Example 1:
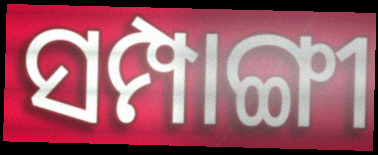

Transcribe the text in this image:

ସମ୍ପାଙ୍ଗୀ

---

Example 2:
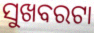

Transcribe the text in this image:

ସୁଖବରଟା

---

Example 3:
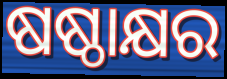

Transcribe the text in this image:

ଷଷ୍ଠାକ୍ଷର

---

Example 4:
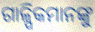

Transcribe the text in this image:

ଗାଳ୍ପିକମାନଙ୍କୁ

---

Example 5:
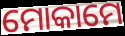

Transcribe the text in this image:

ମୋକାମେ